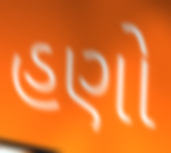
હણો